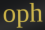
oph